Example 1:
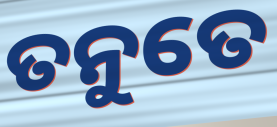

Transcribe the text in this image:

ତନୁତେ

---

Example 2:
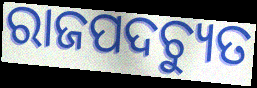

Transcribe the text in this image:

ରାଜପଦଚ୍ୟୁତ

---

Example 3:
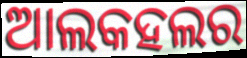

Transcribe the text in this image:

ଆଲକହଲର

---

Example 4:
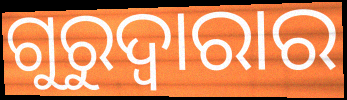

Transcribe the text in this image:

ଗୁରୁଦ୍ୱାରାର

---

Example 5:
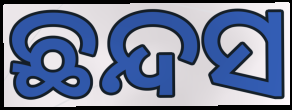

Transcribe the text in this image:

ଛନ୍ଦସ